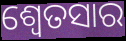
ଶ୍ଵେତସାର